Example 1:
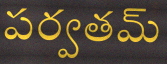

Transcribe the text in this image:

పర్వతమ్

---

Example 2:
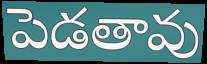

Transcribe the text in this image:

పెడతావు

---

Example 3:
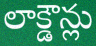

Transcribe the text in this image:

లాక్డౌన్లు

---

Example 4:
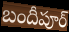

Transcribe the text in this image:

బందీపూర్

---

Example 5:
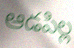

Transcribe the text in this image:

ఆడపిల్ల